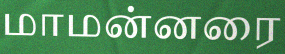
மாமன்னரை